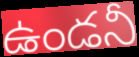
ఉండనీ